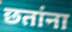
छतांना